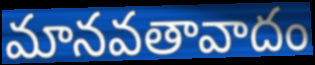
మానవతావాదం